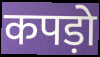
कपड़ो